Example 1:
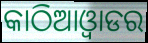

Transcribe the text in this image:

କାଠିଆଓ୍ୱାଡର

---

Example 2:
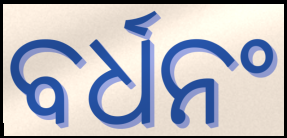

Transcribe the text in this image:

ବର୍ଧନଂ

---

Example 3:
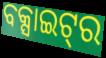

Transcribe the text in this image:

ବକ୍ସାଇଟ୍‌ର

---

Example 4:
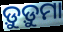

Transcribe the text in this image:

ଡ଼ୁଡ଼ୁମା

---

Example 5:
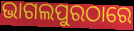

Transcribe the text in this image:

ଭାଗଲପୁରଠାରେ